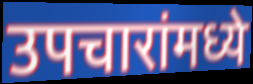
उपचारांमध्ये